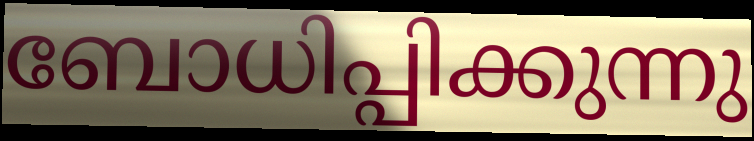
ബോധിപ്പിക്കുന്നു